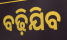
ବଢ଼ିଯିବ